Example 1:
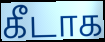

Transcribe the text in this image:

கீடாக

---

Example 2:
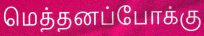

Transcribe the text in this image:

மெத்தனப்போக்கு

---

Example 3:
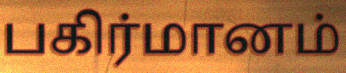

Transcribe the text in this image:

பகிர்மானம்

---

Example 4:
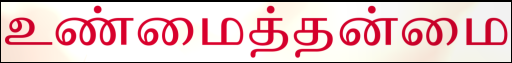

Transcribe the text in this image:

உண்மைத்தன்மை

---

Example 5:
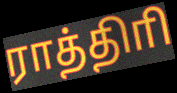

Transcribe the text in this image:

ராத்திரி